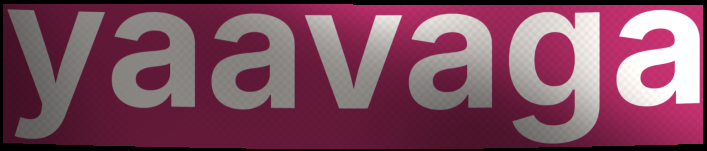
yaavaga